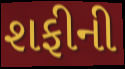
શફીની